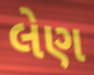
લેણ